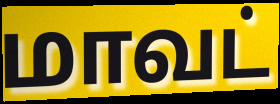
மாவட்